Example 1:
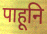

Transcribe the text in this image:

पाहूनि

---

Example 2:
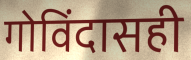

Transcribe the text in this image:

गोविंदासही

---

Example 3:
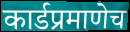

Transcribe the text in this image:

कार्डप्रमाणेच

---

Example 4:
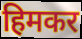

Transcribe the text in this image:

हिमकर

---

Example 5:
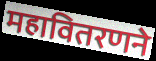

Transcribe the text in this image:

महावितरणने